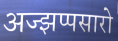
अज्झप्पसारो